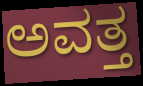
ಅವತ್ತ